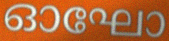
ഓഘോ